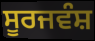
ਸੂਰਜਵੰਸ਼